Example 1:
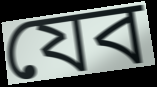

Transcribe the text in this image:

যেব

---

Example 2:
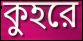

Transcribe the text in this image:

কুহরে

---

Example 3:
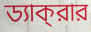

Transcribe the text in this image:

ড্যাক্‌রার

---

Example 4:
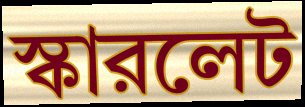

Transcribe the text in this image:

স্কারলেট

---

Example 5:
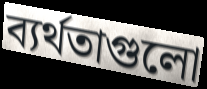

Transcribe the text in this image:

ব্যর্থতাগুলো